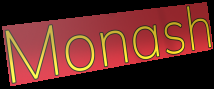
Monash